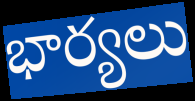
భార్యలు